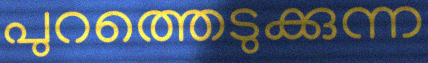
പുറത്തെടുക്കുന്ന